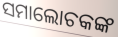
ସମାଲୋଚକଙ୍କ